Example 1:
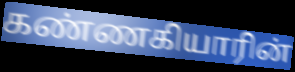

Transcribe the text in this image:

கண்ணகியாரின்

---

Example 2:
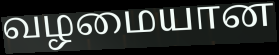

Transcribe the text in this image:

வழமையான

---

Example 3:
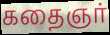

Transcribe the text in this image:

கதைஞர்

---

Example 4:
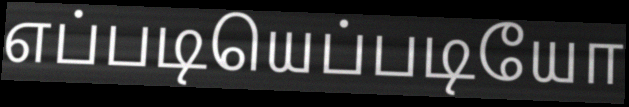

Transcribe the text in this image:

எப்படியெப்படியோ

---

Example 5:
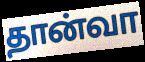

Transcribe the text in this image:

தான்வா